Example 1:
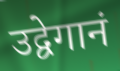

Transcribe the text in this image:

उद्वेगानं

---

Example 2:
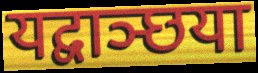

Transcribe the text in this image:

यद्वाञ्छया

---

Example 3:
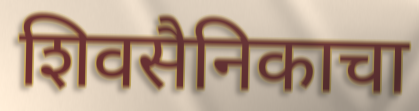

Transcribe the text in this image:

शिवसैनिकाचा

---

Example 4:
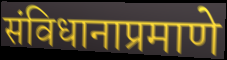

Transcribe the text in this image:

संविधानाप्रमाणे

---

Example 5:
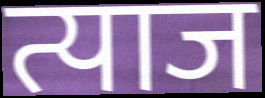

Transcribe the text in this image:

त्याज